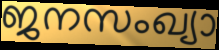
ജനസംഖ്യാ